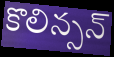
కొలిన్సన్